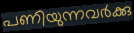
പണിയുന്നവർക്കു